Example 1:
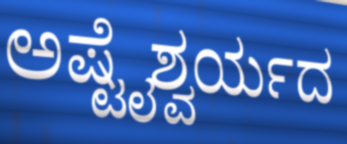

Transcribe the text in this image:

ಅಷ್ಟೈಶ್ವರ್ಯದ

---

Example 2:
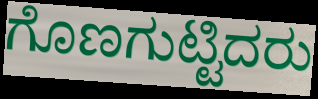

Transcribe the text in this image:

ಗೊಣಗುಟ್ಟಿದರು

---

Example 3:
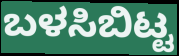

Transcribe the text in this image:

ಬಳಸಿಬಿಟ್ಟ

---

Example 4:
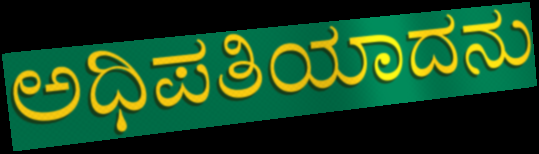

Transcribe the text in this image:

ಅಧಿಪತಿಯಾದನು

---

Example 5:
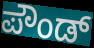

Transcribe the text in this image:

ಪೌಂಡ್